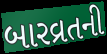
બારવ્રતની